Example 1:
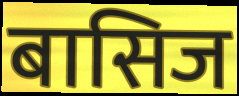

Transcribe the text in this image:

बासिज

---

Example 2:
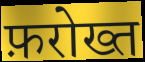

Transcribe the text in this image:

फ़रोख्त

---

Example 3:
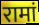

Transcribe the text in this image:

रामां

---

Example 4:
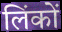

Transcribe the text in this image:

लिंकों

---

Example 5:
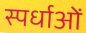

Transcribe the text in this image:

स्‍पर्धाओं